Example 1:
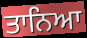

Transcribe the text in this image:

ਤਾਨਿਆ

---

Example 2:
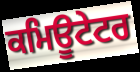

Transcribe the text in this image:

ਕਮਿਊਟੇਟਰ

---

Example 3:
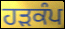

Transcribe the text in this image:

ਹੜਕੰਪ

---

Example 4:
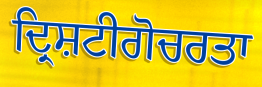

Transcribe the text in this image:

ਦ੍ਰਿਸ਼ਟੀਗੋਚਰਤਾ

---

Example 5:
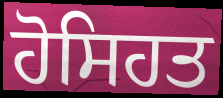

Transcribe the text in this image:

ਹੋਸਿਹਤ